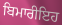
ਬਿਮਾਰੀਇਹ